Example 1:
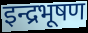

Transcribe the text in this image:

इन्द्रभूषण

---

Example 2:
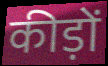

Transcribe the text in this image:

कीड़ों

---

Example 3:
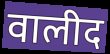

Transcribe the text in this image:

वालीद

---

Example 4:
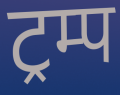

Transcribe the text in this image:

ट्रम्‍प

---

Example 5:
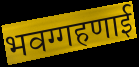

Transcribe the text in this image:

भवग्गहणाई